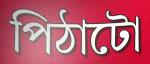
পিঠাটো